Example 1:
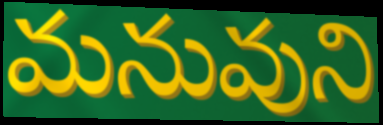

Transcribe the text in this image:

మనువుని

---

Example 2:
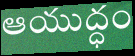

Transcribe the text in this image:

ఆయుద్ధం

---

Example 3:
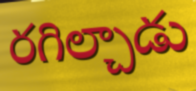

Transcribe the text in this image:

రగిల్చాడు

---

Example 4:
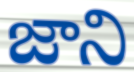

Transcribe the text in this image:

జాని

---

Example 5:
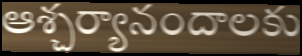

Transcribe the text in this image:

ఆశ్చర్యానందాలకు